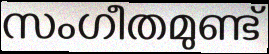
സംഗീതമുണ്ട്